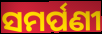
ସମର୍ପଣୀ